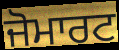
ਜੋਮਾਰਟ